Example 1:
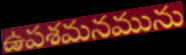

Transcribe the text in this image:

ఉపశమనమును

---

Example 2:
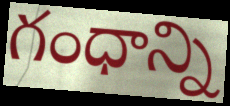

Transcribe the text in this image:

గంధాన్ని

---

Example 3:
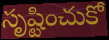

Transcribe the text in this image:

సృష్టించుకో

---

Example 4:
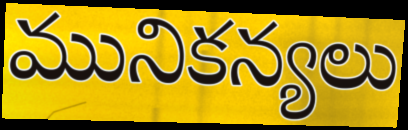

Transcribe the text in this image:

మునికన్యలు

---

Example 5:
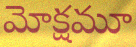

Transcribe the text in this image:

మోక్షమూ